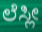
ಲೆಸ್ಲೀ